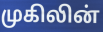
முகிலின்